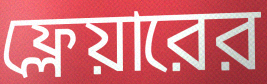
ফ্লেয়ারের